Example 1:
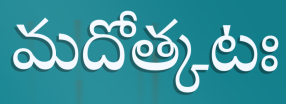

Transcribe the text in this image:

మదోత్కటః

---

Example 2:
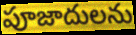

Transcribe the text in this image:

పూజాదులను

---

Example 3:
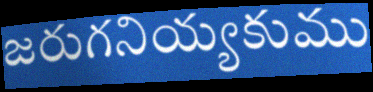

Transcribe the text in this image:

జరుగనియ్యకుము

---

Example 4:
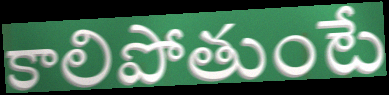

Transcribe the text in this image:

కాలిపోతుంటే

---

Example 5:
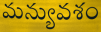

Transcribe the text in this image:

మన్యువశం